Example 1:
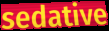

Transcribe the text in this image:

sedative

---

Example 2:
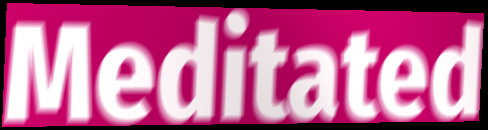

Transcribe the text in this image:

Meditated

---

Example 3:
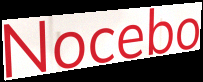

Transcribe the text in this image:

Nocebo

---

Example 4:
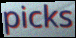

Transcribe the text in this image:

picks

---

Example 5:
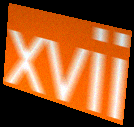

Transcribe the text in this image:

xvii